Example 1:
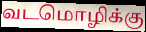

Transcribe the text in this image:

வடமொழிக்கு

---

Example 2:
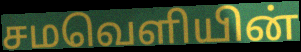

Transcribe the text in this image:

சமவெளியின்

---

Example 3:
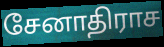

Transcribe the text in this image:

சேனாதிராச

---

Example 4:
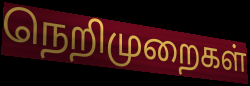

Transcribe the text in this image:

நெறிமுறைகள்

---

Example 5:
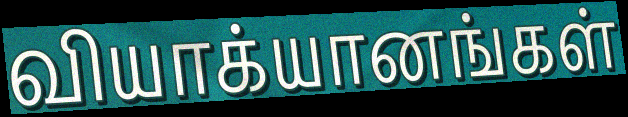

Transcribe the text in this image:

வியாக்யானங்கள்